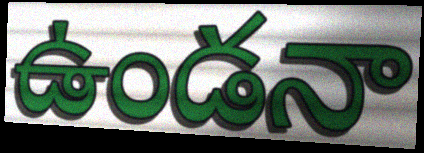
ఉండనా